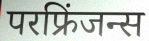
परफ्रिंजन्स